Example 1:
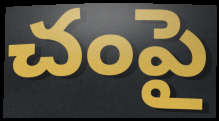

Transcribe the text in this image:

చంపై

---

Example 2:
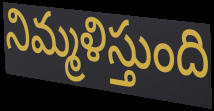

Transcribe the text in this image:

నిమ్మళిస్తుంది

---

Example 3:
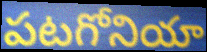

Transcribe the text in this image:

పటగోనియా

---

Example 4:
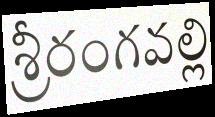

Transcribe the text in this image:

శ్రీరంగవల్లి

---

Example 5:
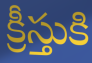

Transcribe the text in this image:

క్రీస్తుకి